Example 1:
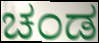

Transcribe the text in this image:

ಚಂಡ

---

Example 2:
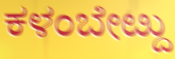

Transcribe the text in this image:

ಕಳಂಬೇೞ್ದು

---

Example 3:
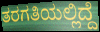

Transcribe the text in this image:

ತರಗತಿಯಲ್ಲಿದ್ದೆ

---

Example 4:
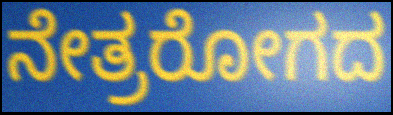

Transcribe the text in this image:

ನೇತ್ರರೋಗದ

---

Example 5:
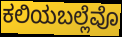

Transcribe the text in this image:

ಕಲಿಯಬಲ್ಲೆವೊ